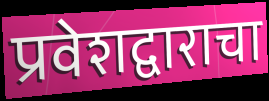
प्रवेशद्वाराचा